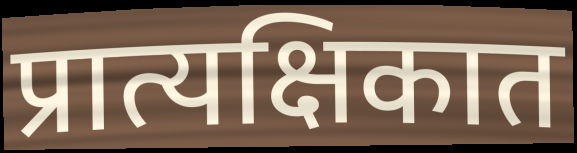
प्रात्यक्षिकात